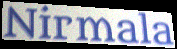
Nirmala